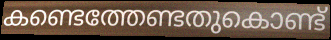
കണ്ടെത്തേണ്ടതുകൊണ്ട്